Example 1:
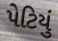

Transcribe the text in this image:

પેટિયું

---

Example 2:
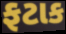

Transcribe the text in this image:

ફટાક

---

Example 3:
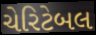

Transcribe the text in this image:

ચેરિટેબલ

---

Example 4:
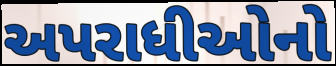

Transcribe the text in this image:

અપરાધીઓનો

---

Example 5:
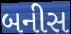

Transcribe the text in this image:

બનીસ